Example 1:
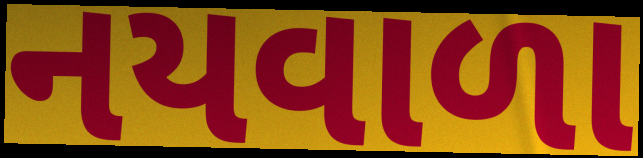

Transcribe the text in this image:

નયવાળા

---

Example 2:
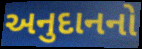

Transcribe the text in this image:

અનુદાનનો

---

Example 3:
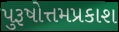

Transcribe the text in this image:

પુરૂષોત્તમપ્રકાશ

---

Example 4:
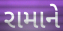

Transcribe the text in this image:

રામાને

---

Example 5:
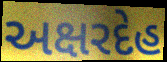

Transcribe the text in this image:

અક્ષરદેહ